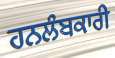
ਹਨਲੰਬਕਾਰੀ